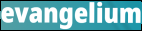
evangelium